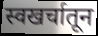
स्वखर्चातून